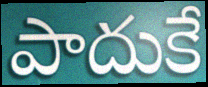
పాదుకే